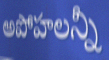
అపోహలన్నీ